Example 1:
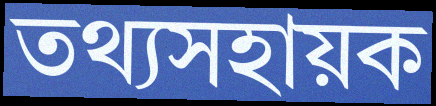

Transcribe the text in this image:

তথ্যসহায়ক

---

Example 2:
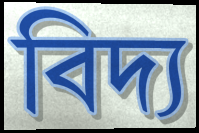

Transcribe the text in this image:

বিদ্য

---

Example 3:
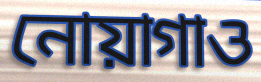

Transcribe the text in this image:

নোয়াগাও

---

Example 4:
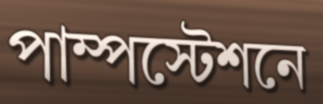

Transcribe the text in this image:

পাম্পস্টেশনে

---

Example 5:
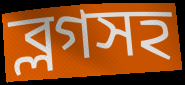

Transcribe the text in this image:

ব্লগসহ